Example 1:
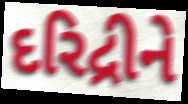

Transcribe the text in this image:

દરિદ્રીને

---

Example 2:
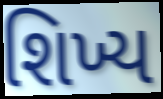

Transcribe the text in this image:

શિખ્ય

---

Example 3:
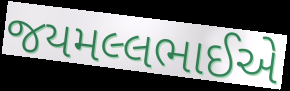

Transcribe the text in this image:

જયમલ્લભાઈએ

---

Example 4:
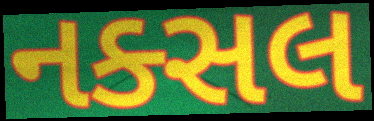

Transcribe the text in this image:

નક્સલ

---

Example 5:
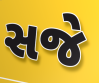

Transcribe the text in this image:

સજે